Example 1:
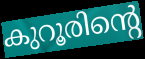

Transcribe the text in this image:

കുറൂരിന്റെ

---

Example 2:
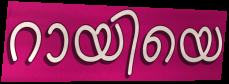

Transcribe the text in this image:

റായിയെ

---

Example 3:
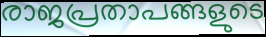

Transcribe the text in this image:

രാജപ്രതാപങ്ങളുടെ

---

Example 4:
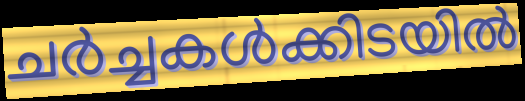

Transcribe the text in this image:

ചർച്ചകൾക്കിടയിൽ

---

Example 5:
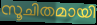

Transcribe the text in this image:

സൂചിതമായി